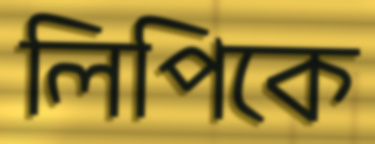
লিপিকে